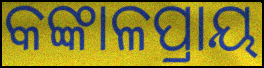
କଙ୍କାଳପ୍ରାୟ